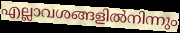
എല്ലാവശങ്ങളിൽനിന്നും